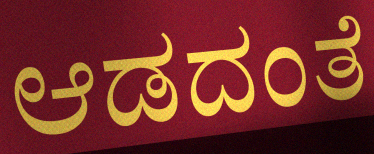
ಆಡದಂತೆ